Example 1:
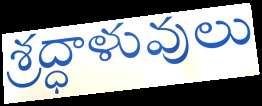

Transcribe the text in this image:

శ్రద్ధాళువులు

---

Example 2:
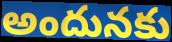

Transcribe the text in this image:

అందునకు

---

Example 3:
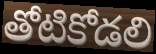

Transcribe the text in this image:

తోటికోడలి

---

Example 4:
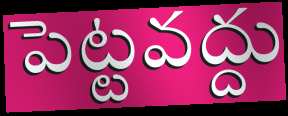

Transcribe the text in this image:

పెట్టవద్దు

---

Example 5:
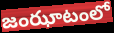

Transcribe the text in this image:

జంఝాటంలో